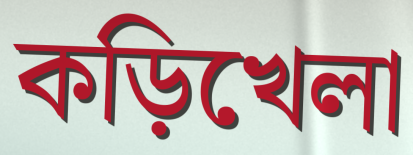
কড়িখেলা